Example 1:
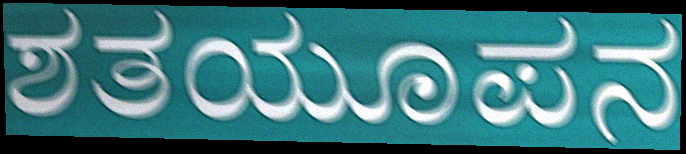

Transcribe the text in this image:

ಶತಯೂಪನ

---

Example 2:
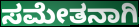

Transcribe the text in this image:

ಸಮೇತನಾಗಿ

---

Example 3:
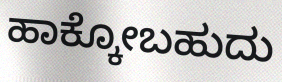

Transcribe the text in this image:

ಹಾಕ್ಕೋಬಹುದು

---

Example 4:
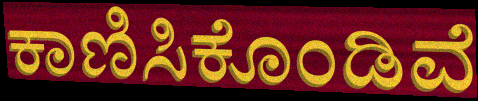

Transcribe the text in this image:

ಕಾಣಿಸಿಕೊಂಡಿವೆ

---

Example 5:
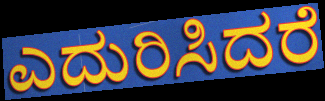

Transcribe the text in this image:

ಎದುರಿಸಿದರೆ